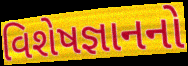
વિશેષજ્ઞાનનો